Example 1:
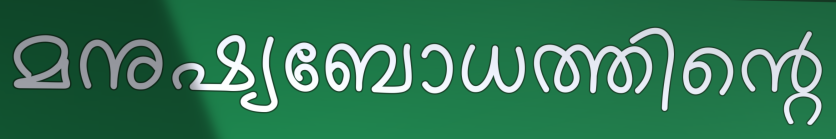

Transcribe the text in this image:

മനുഷ്യബോധത്തിന്റെ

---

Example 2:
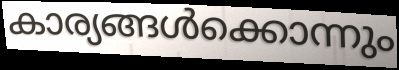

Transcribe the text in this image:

കാര്യങ്ങൾക്കൊന്നും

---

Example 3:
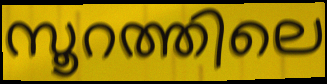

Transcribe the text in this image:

സൂറത്തിലെ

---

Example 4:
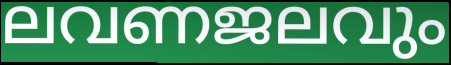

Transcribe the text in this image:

ലവണജലവും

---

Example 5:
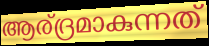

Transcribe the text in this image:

ആര്ദ്രമാകുന്നത്